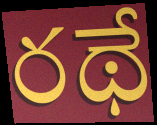
రథే